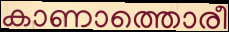
കാണാത്തൊരീ